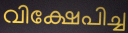
വിക്ഷേപിച്ച